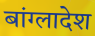
बांग्लादेश